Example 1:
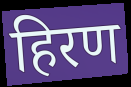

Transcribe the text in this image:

हिरण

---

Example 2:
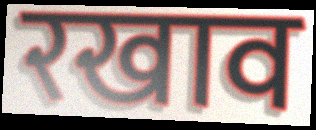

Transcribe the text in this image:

रखाव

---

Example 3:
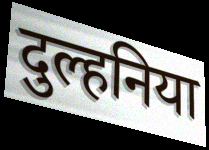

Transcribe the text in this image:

दुल्हनिया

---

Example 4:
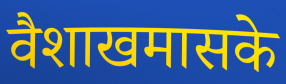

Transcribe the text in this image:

वैशाखमासके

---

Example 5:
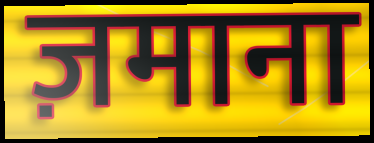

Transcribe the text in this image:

ज़माना